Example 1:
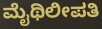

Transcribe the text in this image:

ಮೈಥಿಲೀಪತಿ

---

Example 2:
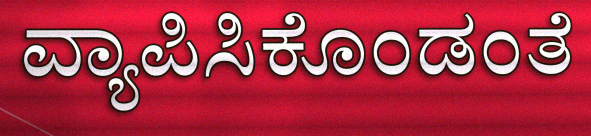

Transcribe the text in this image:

ವ್ಯಾಪಿಸಿಕೊಂಡಂತೆ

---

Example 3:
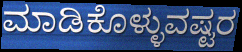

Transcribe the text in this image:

ಮಾಡಿಕೊಳ್ಳುವಷ್ಟರ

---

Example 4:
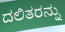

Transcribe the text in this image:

ದಲಿತರನ್ನು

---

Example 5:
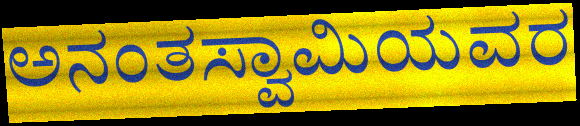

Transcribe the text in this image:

ಅನಂತಸ್ವಾಮಿಯವರ